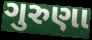
ગુરુણા